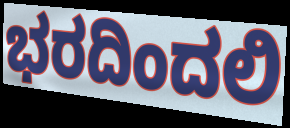
ಭರದಿಂದಲಿ